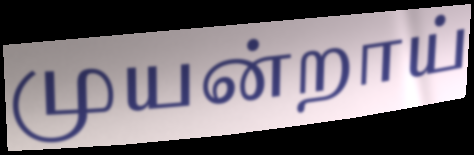
முயன்றாய்